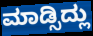
ಮಾಡ್ಸಿದ್ಲು